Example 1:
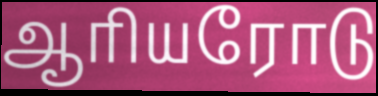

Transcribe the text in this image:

ஆரியரோடு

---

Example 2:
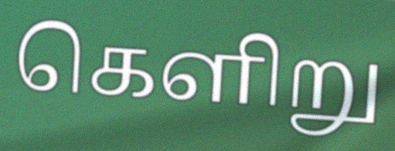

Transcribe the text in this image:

கெளிறு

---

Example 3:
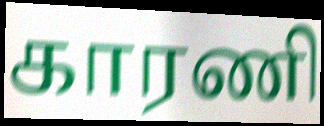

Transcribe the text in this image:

காரணி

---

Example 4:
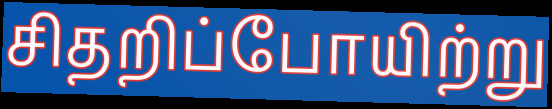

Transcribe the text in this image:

சிதறிப்போயிற்று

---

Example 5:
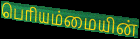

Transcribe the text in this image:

பெரியம்மையின்